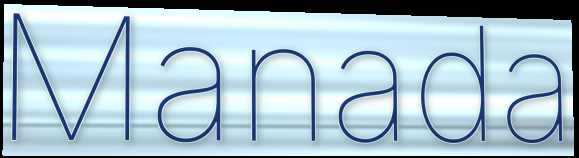
Manada